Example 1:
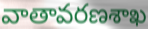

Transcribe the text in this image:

వాతావరణశాఖ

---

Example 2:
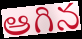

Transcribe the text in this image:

ఆగిన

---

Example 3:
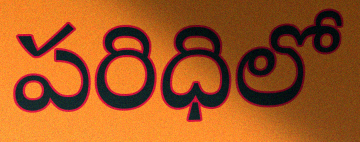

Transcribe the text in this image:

పరిధిలో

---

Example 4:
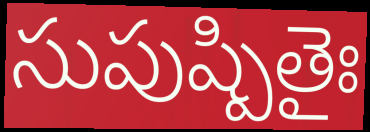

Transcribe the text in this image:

సుపుష్పితైః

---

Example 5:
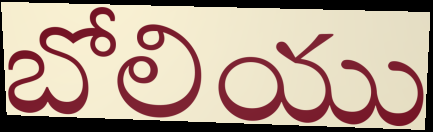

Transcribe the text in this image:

బోలియు